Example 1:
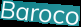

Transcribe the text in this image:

Baroco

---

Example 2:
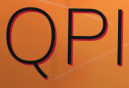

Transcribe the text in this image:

QPI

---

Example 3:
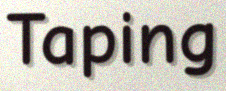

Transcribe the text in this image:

Taping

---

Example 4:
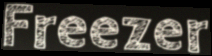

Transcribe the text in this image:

Freezer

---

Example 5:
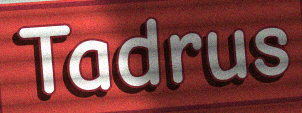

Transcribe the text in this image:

Tadrus